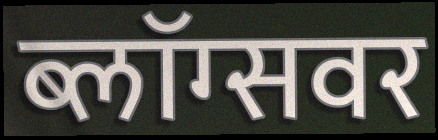
ब्लॉग्सवर